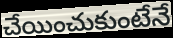
చేయించుకుంటేనే